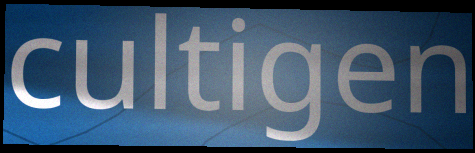
cultigen